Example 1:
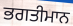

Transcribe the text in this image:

ਭਗਤੀਮਾਨ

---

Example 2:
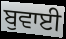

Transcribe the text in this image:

ਬੁਵਾਈ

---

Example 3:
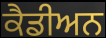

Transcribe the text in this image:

ਕੈਡੀਅਨ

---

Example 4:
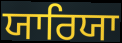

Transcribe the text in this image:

ਯਾਰਿਯਾ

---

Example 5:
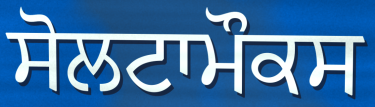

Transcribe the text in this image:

ਸੋਲਟਾਮੌਕਸ